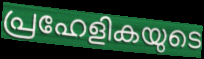
പ്രഹേളികയുടെ